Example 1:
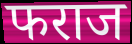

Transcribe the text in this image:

फराज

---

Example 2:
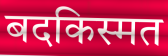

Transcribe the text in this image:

बदकिस्‍मत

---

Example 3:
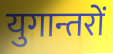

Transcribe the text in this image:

युगान्तरों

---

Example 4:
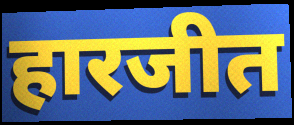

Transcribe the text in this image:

हारजीत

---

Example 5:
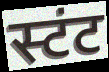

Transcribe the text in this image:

स्टंट